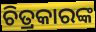
ଚିତ୍ରକାରଙ୍କ